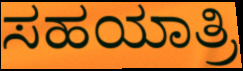
ಸಹಯಾತ್ರಿ